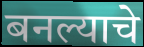
बनल्याचे